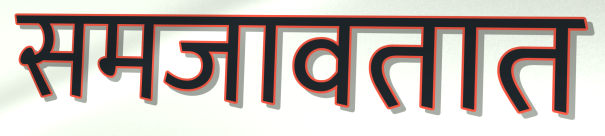
समजावतात